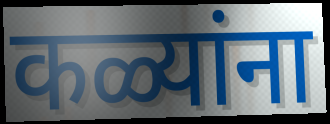
कळ्यांना